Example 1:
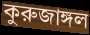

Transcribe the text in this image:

কুরুজাঙ্গল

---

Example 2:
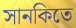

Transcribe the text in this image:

সানকিতে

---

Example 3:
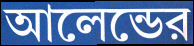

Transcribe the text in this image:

আলেন্ডের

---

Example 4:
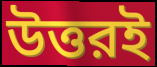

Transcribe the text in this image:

উত্তরই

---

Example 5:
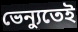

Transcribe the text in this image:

ভেন্যুতেই